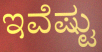
ಇವೆಷ್ಟು